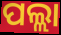
ପଲ୍ଲା